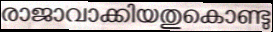
രാജാവാക്കിയതുകൊണ്ടു